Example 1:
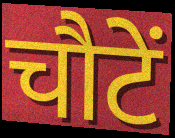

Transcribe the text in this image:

चौटें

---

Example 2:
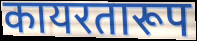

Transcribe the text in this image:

कायरतारूप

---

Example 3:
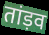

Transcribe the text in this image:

तांड़व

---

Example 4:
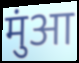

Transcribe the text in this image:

मुंआ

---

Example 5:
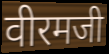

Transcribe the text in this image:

वीरमजी